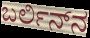
ಬರ್ಲಿನ್‍ನ